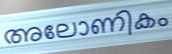
അലോണികം